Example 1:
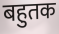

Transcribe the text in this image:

बहुतक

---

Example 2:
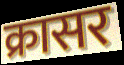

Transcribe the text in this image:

क्रासर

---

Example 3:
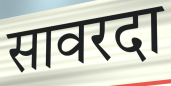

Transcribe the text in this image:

सावरदा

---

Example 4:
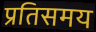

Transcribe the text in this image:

प्रतिसमय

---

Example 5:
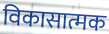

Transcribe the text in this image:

विकासात्मक